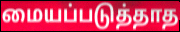
மையப்படுத்தாத